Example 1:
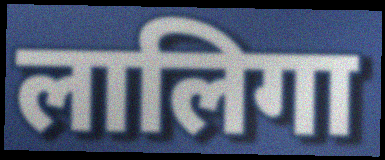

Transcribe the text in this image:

लालिगा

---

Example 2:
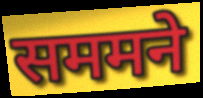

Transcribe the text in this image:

सममने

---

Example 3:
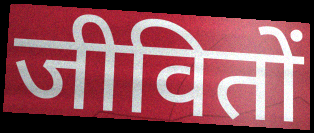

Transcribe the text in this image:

जीवितों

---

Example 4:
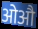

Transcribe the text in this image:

ओऔ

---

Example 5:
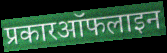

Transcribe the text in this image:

प्रकारऑफलाइन